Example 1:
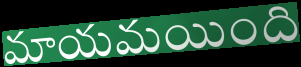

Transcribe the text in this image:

మాయమయింది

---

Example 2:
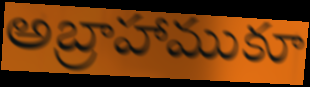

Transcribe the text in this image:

అబ్రాహాముకూ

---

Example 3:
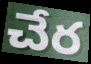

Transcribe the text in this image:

చేర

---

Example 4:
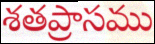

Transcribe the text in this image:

శతప్రాసము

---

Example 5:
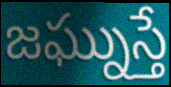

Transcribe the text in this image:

జఘ్నుస్తే